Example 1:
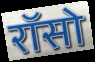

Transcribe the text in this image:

रॉसो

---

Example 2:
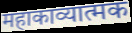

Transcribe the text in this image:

महाकाव्‍यात्‍मक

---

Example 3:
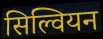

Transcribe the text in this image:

सिल्वियन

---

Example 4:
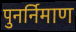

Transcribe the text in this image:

पुनर्निमाण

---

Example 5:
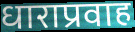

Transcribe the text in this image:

धाराप्रवाह